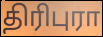
திரிபுரா